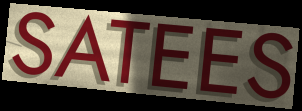
SATEES